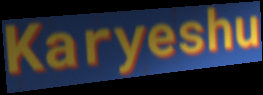
Karyeshu